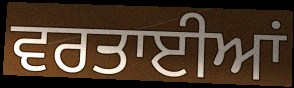
ਵਰਤਾਈਆਂ